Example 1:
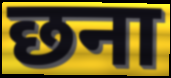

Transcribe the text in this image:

छना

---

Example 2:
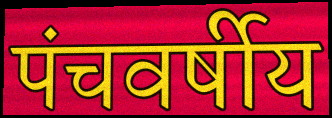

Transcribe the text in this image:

पंचवर्षीय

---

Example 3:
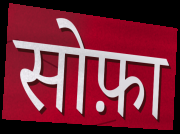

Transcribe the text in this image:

सोफ़ा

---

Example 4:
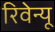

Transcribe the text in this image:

रिवेन्यू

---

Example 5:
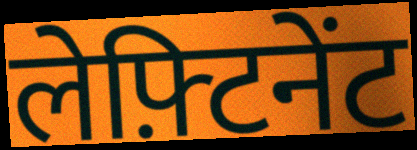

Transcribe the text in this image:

लेफ़्टिनेंट